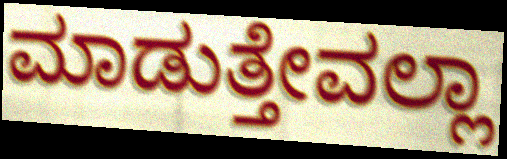
ಮಾಡುತ್ತೇವಲ್ಲಾ